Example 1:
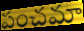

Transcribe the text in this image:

పంచమా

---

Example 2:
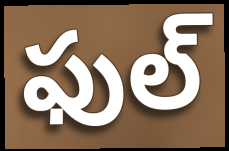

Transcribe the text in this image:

ఫుల్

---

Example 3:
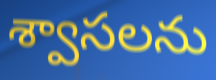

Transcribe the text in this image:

శ్వాసలను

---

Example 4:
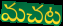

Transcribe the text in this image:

మచట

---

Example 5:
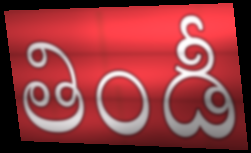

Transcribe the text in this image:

తిండీ